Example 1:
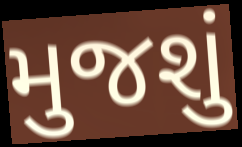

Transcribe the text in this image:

મુજશું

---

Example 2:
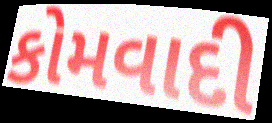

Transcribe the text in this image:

કોમવાદી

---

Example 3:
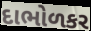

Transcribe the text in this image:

દાભોળકર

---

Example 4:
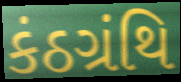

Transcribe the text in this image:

કંઠગ્રંથિ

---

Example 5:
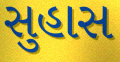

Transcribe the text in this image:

સુહાસ